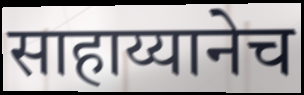
साहाय्यानेच